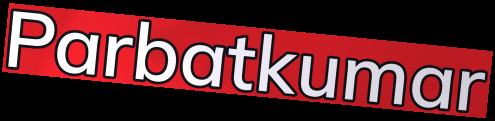
Parbatkumar